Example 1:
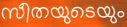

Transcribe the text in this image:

സീതയുടെയും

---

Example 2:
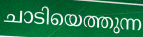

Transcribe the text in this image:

ചാടിയെത്തുന്ന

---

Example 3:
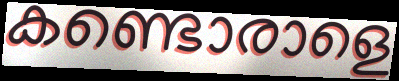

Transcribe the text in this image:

കണ്ടൊരാളെ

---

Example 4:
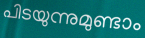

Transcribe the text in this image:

പിടയുന്നുമുണ്ടാം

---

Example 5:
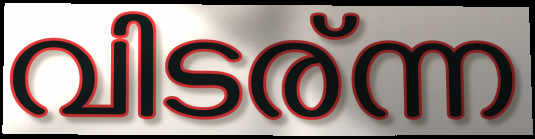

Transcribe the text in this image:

വിടര്ന്ന